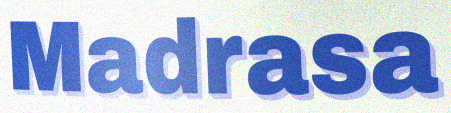
Madrasa